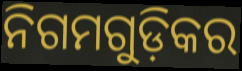
ନିଗମଗୁଡ଼ିକର